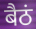
बैठं